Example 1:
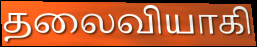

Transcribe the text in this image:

தலைவியாகி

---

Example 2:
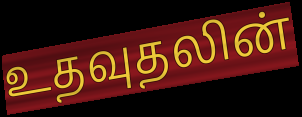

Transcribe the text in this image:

உதவுதலின்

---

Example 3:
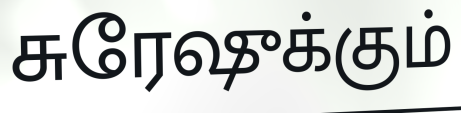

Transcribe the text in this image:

சுரேஷுக்கும்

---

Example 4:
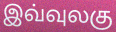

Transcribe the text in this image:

இவ்வுலகு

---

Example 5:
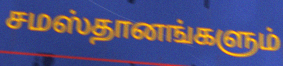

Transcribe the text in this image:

சமஸ்தானங்களும்